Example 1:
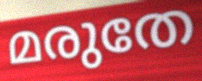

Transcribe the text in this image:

മരുതേ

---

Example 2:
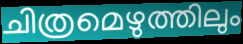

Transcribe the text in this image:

ചിത്രമെഴുത്തിലും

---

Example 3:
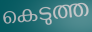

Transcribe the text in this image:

കെടുത്ത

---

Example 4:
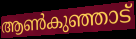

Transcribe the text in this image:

ആൺകുഞ്ഞാട്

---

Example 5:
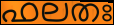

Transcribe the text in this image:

ഫലതഃ